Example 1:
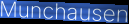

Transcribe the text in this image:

Munchausen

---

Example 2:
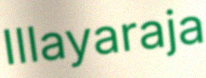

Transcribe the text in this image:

Illayaraja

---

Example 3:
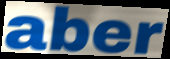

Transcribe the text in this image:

aber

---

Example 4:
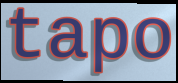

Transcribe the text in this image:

tapo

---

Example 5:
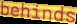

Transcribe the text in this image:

behinds